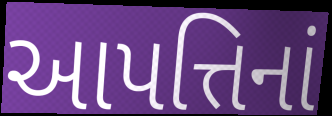
આપત્તિનાં